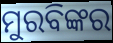
ମୁରବିଙ୍କର